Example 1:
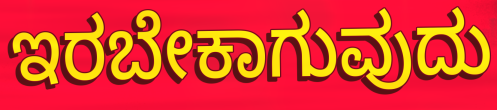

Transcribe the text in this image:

ಇರಬೇಕಾಗುವುದು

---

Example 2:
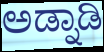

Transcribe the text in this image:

ಅಡ್ನಾಡಿ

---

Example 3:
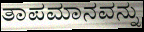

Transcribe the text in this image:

ತಾಪಮಾನವನ್ನು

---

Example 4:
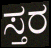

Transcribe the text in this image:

ಸ್ತರ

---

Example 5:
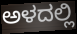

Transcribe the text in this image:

ಅಳದಲ್ಲಿ